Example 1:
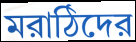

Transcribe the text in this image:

মরাঠিদের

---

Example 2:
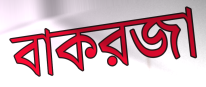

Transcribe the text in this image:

বাকরজা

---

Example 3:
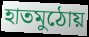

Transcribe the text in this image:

হাতমুঠোয়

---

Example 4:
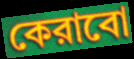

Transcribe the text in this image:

কেরাবো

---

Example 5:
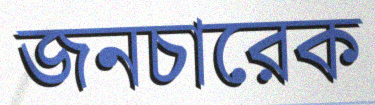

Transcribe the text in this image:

জনচারেক